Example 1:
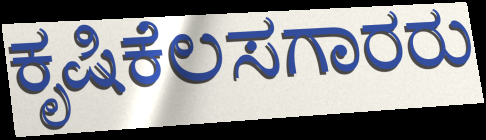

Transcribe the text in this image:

ಕೃಷಿಕೆಲಸಗಾರರು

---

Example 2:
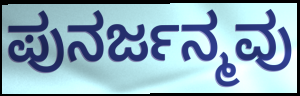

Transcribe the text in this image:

ಪುನರ್ಜನ್ಮವು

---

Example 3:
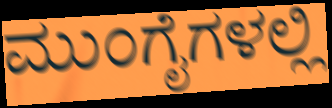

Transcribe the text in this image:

ಮುಂಗೈಗಳಲ್ಲಿ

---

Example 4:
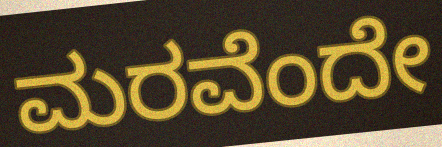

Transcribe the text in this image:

ಮರವೆಂದೇ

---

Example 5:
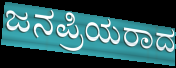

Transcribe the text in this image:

ಜನಪ್ರಿಯರಾದ